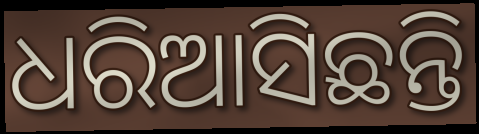
ଧରିଆସିଛନ୍ତି